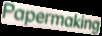
Papermaking